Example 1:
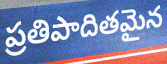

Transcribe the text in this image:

ప్రతిపాదితమైన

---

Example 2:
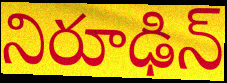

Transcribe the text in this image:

నిరూఢిన్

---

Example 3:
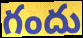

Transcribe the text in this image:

గందు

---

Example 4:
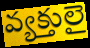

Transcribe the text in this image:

వ్యక్తులై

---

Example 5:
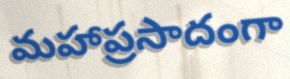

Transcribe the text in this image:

మహాప్రసాదంగా